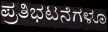
ಪ್ರತಿಭಟನೆಗಳೂ